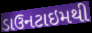
ડાઉનટાઇમથી